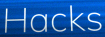
Hacks